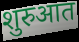
शुरुआत